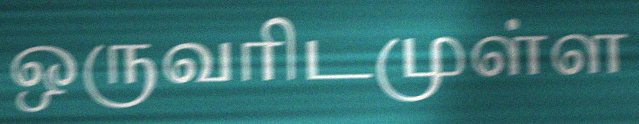
ஒருவரிடமுள்ள